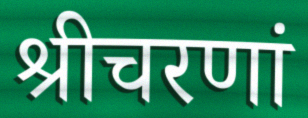
श्रीचरणां